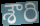
శౌరి